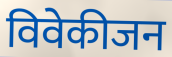
विवेकीजन